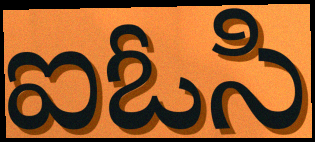
ఐఓసి